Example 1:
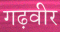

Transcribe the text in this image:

गढ़वीर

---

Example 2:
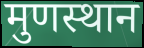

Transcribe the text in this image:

मुणस्थान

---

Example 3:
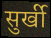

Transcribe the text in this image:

सुर्खी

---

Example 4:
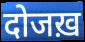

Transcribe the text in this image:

दोजख़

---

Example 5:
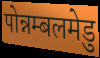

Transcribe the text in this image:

पोन्नम्बलमेडु